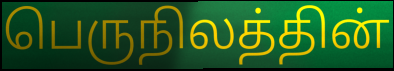
பெருநிலத்தின்